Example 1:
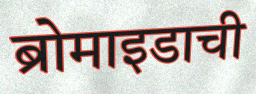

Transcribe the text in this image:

ब्रोमाइडाची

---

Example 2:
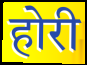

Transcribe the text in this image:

होरी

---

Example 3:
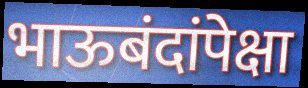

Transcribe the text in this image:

भाऊबंदांपेक्षा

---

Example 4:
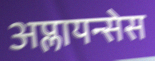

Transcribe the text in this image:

अप्लायन्सेस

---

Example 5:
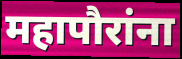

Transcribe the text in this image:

महापौरांना